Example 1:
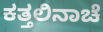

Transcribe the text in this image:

ಕತ್ತಲಿನಾಚೆ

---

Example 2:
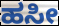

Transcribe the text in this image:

ಹಸೀ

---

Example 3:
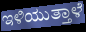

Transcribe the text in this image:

ಇಳಿಯುತ್ತಾಳೆ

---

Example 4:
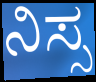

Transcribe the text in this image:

ನಿಸ್ಸ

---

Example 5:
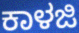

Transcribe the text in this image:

ಕಾಳಜಿ